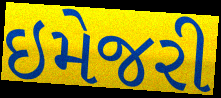
ઇમેજરી